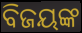
ବିଜୟଙ୍କ